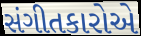
સંગીતકારોએ